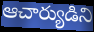
ఆచార్యుడిని